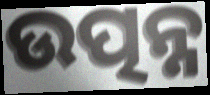
ଉତ୍ପନ୍ନ